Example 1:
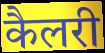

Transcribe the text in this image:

कैलरी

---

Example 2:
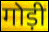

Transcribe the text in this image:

गोड़ी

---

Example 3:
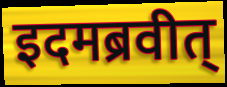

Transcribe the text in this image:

इदमब्रवीत्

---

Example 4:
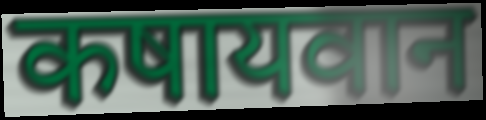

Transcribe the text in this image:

कषायवान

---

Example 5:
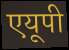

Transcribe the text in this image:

एयूपी